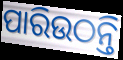
ପାରିଉଠନ୍ତି